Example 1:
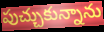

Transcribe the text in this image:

పుచ్చుకున్నాను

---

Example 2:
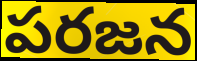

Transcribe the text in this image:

పరజన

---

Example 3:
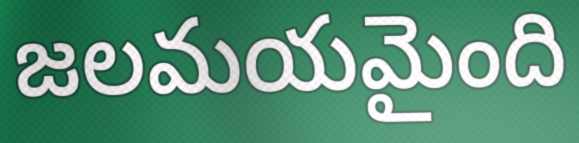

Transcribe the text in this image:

జలమయమైంది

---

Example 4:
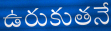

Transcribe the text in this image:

ఉరుకుతనే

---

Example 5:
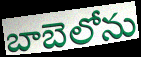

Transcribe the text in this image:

బాబెలోను